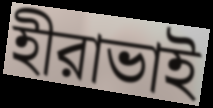
হীরাভাই